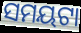
ସମୟଟା